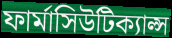
ফার্মাসিউটিক্যাল্স